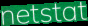
netstat